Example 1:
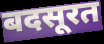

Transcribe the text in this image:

बदसूरत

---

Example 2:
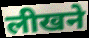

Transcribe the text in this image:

लीखने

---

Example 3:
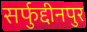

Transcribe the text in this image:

सर्फुद्दीनपुर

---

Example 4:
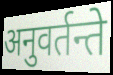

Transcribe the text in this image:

अनुवर्तन्ते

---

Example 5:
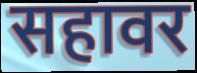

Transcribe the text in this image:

सहावर